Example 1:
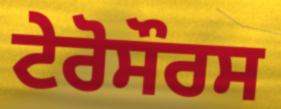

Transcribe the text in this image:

ਟੇਰੋਸੌਰਸ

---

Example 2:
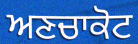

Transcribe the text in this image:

ਅਣਚਾਕੋਟ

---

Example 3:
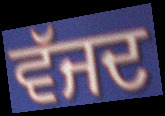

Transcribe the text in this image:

ਵੱਜਦ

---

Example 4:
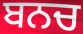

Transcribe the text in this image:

ਬਨਚ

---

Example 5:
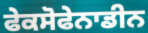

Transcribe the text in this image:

ਫੇਕਸੋਫੇਨਾਡੀਨ